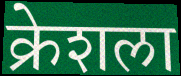
क्रेशला